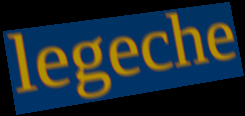
legeche